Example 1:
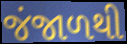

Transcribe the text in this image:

જંજાળથી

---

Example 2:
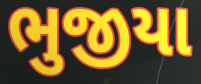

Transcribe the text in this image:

ભુજીયા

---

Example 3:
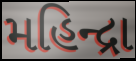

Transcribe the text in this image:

મહિન્દ્રા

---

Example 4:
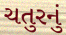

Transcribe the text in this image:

ચતુરનું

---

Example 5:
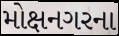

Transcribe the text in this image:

મોક્ષનગરના